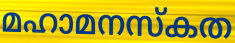
മഹാമനസ്കത